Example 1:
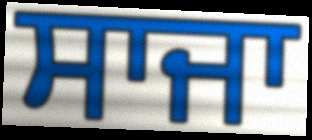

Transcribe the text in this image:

ਸਾਜਾ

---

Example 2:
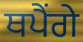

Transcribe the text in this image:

ਥਪੈਂਗੇ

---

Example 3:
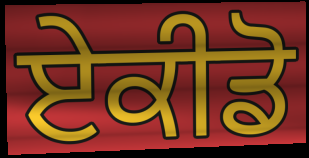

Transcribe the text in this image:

ਏਕੀਡੋ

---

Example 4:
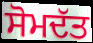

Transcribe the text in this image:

ਸੋਮਦੱਤ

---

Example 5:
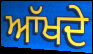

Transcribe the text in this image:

ਆੱਖਦੇ